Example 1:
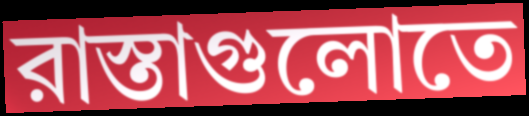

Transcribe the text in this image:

রাস্তাগুলোতে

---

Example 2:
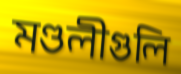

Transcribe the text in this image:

মণ্ডলীগুলি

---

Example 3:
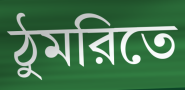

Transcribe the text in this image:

ঠুমরিতে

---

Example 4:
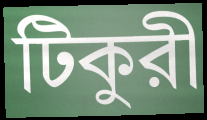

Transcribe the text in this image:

টিকুরী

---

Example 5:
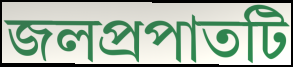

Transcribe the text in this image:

জলপ্রপাতটি